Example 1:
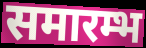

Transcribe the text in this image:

समारम्भ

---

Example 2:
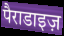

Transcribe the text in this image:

पैराडाइज़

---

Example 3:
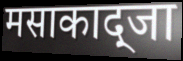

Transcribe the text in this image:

मसाकाद्जा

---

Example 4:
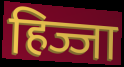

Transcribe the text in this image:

हिज्जा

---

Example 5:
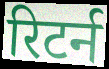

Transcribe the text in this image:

रिटर्न